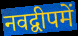
नवद्वीपमें